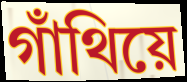
গাঁথিয়ে